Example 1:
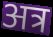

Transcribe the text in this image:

अत्र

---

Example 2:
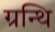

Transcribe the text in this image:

ग्रन्थि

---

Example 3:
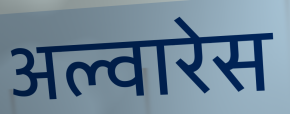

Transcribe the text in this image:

अल्वारेस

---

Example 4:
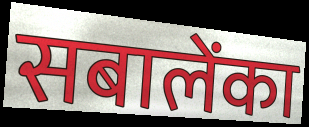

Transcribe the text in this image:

सबालेंका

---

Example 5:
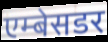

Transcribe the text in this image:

एम्बेसडर